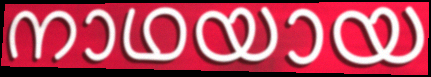
നാഥയായ